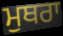
ਮੁਥਰਾ